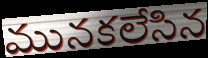
మునకలేసిన